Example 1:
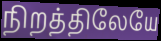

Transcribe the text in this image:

நிறத்திலேயே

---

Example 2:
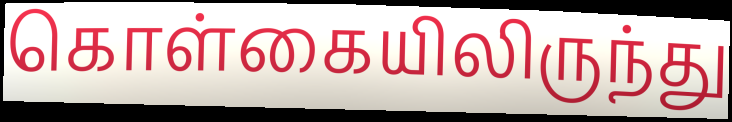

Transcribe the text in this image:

கொள்கையிலிருந்து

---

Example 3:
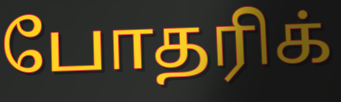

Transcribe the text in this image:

போதரிக்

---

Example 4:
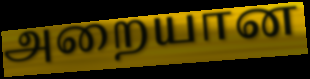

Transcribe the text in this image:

அறையான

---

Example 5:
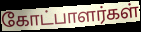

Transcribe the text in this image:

கோட்பாளர்கள்